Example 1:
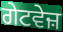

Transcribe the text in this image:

ਗੇਟਵੇਜ਼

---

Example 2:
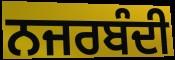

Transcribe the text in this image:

ਨਜਰਬੰਦੀ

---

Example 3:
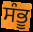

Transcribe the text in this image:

ਸੰਭੂ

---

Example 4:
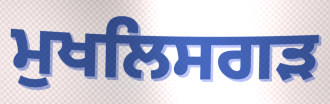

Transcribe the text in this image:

ਮੁਖਲਿਸਗੜ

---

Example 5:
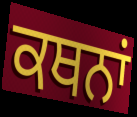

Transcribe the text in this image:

ਕਥਨਾਂ